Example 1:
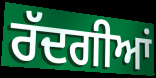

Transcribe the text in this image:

ਰੱਦਗੀਆਂ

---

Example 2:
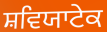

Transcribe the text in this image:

ਸ਼ਵਿਯਾਟੇਕ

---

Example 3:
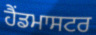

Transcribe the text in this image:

ਹੈਂਡਮਾਸਟਰ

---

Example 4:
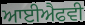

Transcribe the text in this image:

ਆਈਐਫਵੀ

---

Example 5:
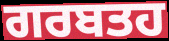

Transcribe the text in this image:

ਗਰਬਤਹ